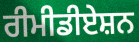
ਰੀਮੀਡੀਏਸ਼ਨ